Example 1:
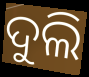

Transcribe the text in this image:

ଦୁଲି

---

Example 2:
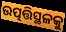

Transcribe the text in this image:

ଉତ୍ପତ୍ତିସ୍ଥଳକୁ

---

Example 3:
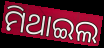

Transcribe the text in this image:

ମିଥାଇଲ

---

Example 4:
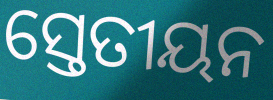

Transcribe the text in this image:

ସ୍ତେତୀୟନ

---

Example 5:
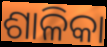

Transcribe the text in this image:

ଶାଳିକା